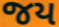
જય